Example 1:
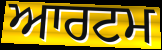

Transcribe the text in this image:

ਆਰਟਮ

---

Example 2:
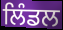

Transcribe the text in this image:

ਲਿੰਡਲ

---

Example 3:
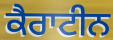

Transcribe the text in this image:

ਕੈਰਾਟੀਨ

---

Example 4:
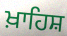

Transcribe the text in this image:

ਖ਼ਾਹਿਸ਼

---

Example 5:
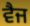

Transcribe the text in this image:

ਵੈਜ